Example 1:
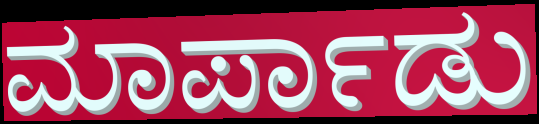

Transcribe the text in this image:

ಮಾರ್ಪಾಡು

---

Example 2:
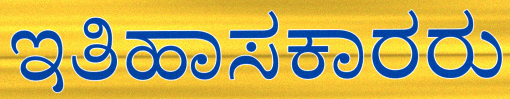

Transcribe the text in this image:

ಇತಿಹಾಸಕಾರರು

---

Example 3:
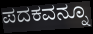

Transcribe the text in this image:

ಪದಕವನ್ನೂ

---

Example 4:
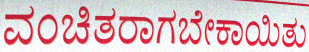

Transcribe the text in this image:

ವಂಚಿತರಾಗಬೇಕಾಯಿತು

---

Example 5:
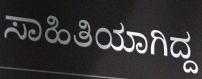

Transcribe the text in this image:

ಸಾಹಿತಿಯಾಗಿದ್ದ